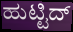
ಹುಟ್ಟಿದ್